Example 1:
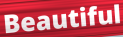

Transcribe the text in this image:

Beautiful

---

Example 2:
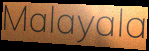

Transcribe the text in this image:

Malayala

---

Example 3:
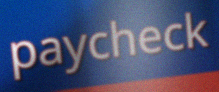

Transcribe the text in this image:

paycheck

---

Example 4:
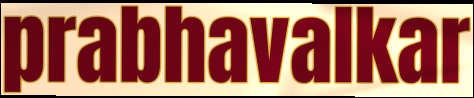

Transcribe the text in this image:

prabhavalkar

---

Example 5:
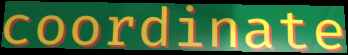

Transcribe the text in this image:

coordinate